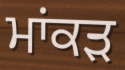
ਮਾਂਕੜ